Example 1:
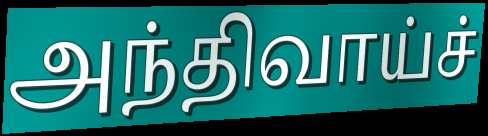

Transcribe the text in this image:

அந்திவாய்ச்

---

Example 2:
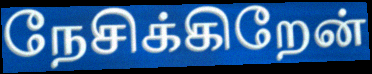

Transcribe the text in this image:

நேசிக்கிறேன்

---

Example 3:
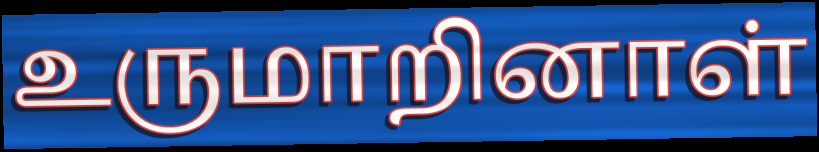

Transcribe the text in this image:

உருமாறினாள்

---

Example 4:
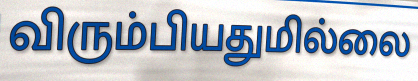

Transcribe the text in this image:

விரும்பியதுமில்லை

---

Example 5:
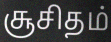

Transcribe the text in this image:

சூசிதம்